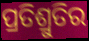
ପ୍ରତିଶ୍ରୁତିର